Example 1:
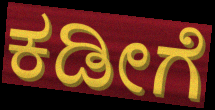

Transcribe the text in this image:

ಕಡೀಗೆ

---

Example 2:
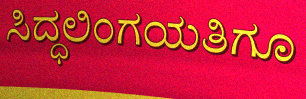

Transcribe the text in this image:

ಸಿದ್ಧಲಿಂಗಯತಿಗೂ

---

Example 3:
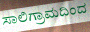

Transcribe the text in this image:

ಸಾಲಿಗ್ರಾಮದಿಂದ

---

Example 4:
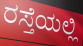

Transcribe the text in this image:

ರಸ್ತೆಯಲ್ಲಿ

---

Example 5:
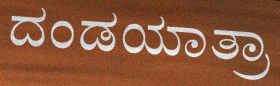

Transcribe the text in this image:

ದಂಡಯಾತ್ರಾ